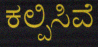
ಕಲ್ಪಿಸಿವೆ